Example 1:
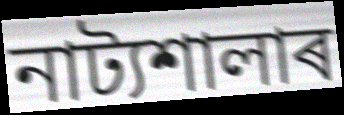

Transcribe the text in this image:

নাট্যশালাৰ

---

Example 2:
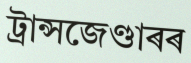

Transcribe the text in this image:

ট্ৰান্সজেণ্ডাৰৰ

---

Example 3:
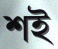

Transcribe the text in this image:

শই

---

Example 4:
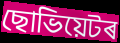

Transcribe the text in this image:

ছোভিয়েটৰ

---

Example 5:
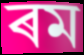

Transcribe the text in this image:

ৰম